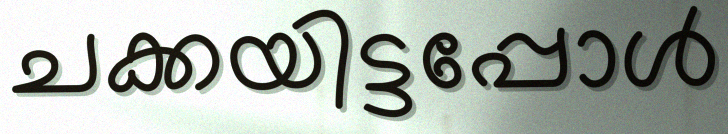
ചക്കയിട്ടപ്പോൾ